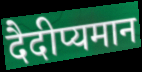
दैदीप्यमान